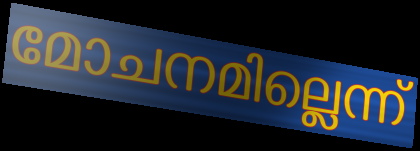
മോചനമില്ലെന്ന്